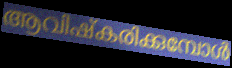
ആവിഷ്‌കരിക്കുമ്പോൾ